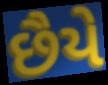
છૈયે